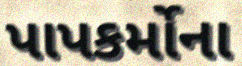
પાપકર્મોના